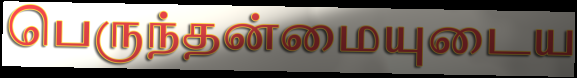
பெருந்தன்மையுடைய